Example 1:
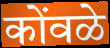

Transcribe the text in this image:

कोंवळे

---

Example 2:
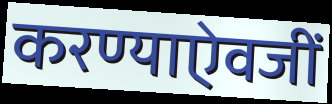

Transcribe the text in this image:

करण्याऐवजीं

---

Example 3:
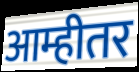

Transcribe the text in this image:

आम्हीतर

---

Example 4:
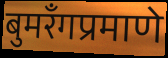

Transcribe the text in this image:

बुमरँगप्रमाणे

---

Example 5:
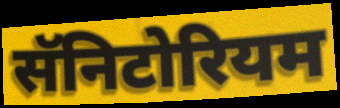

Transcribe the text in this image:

सॅनिटोरियम